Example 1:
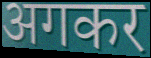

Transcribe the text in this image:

अगकर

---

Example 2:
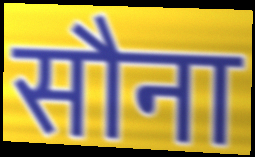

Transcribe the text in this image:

सौना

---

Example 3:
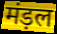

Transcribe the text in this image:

मंड़ल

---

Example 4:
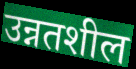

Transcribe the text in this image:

उन्नतशील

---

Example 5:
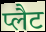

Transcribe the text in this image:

प्लैट